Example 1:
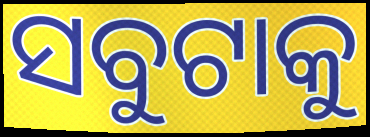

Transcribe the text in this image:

ସବୁଟାକୁ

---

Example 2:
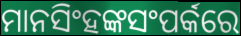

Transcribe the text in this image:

ମାନସିଂହଙ୍କସଂପର୍କରେ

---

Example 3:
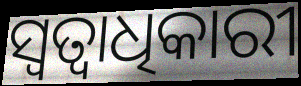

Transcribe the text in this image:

ସ୍ବତ୍ବାଧିକାରୀ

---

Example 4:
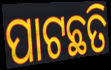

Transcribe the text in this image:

ପାଟଛତି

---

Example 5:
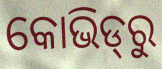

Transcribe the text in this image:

କୋଭିଡ୍‌ରୁ